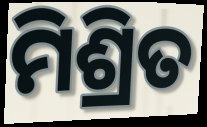
ମିଶ୍ରିତ